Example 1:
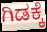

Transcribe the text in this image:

ಗಿಡಕ್ಕೆ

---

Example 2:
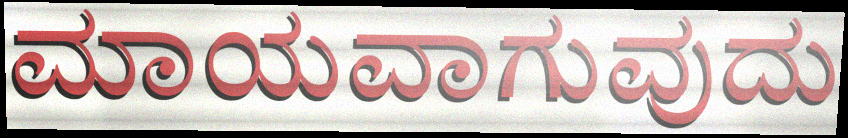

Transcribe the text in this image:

ಮಾಯವಾಗುವುದು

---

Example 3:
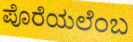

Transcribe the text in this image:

ಪೊರೆಯಲೆಂಬ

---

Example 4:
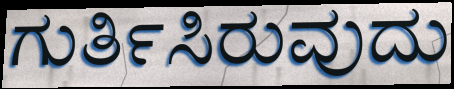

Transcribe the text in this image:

ಗುರ್ತಿಸಿರುವುದು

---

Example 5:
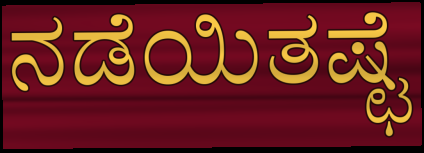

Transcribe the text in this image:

ನಡೆಯಿತಷ್ಟೆ